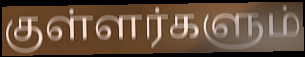
குள்ளர்களும்